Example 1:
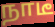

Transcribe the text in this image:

நாடீ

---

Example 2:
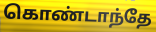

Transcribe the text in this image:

கொண்டாந்தே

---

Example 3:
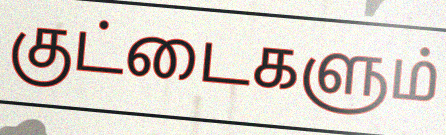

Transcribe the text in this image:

குட்டைகளும்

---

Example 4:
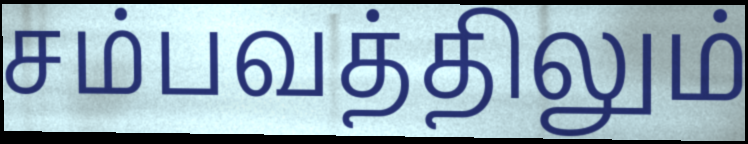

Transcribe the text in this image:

சம்பவத்திலும்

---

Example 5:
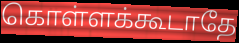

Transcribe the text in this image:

கொள்ளக்கூடாதே